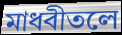
মাধবীতলে